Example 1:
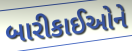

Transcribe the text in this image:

બારીકાઈઓને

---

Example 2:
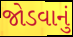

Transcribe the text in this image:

જોડવાનું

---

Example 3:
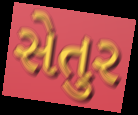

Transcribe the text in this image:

સેતુર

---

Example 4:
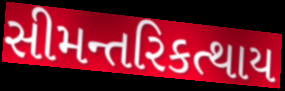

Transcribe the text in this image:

સીમન્તરિકત્થાય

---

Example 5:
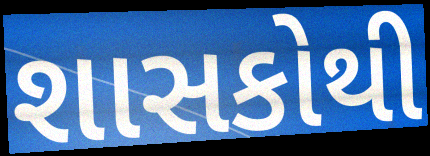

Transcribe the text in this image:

શાસકોથી